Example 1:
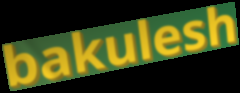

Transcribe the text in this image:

bakulesh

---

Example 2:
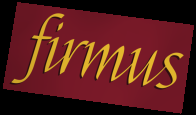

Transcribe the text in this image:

firmus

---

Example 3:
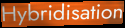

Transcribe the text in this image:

Hybridisation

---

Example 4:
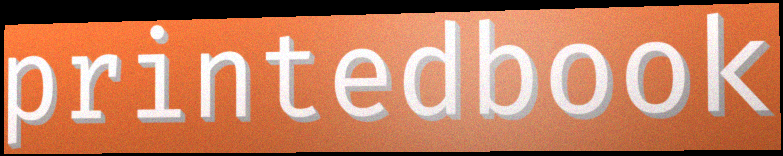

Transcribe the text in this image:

printedbook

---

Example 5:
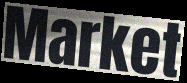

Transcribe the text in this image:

Market